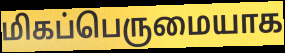
மிகப்பெருமையாக